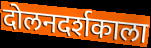
दोलनदर्शकाला